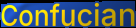
Confucian